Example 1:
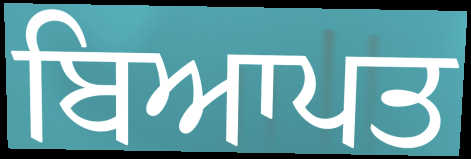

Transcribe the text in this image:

ਬਿਆਪਤ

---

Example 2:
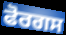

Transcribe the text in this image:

ਫੋਰਗਸ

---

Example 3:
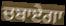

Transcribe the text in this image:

ਚਬਾਏਗਾ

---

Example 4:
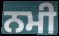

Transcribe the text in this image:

ਨਮੀ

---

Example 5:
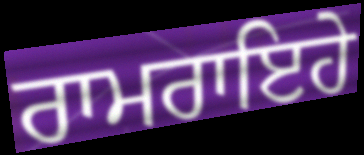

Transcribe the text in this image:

ਰਾਮਰਾਇਹੇ